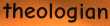
theologian